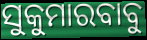
ସୁକୁମାରବାବୁ